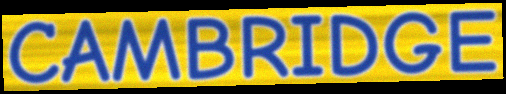
CAMBRIDGE